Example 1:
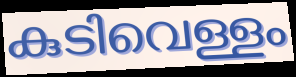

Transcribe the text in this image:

കുടിവെള്ളം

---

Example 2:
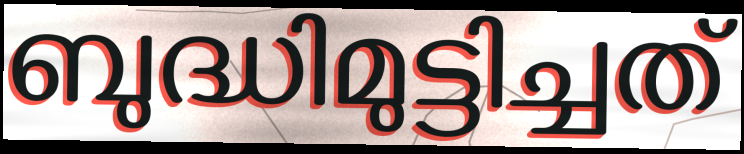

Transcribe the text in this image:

ബുദ്ധിമുട്ടിച്ചത്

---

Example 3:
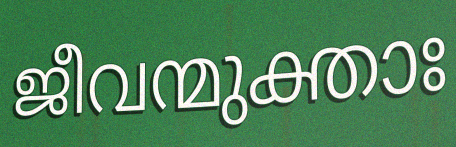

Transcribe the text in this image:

ജീവന്മുക്താഃ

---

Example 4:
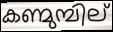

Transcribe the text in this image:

കണ്മുമ്പില്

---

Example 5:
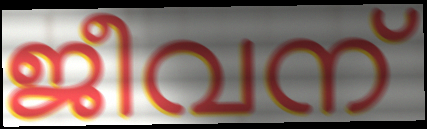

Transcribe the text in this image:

ജീവന്